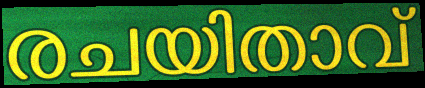
രചയിതാവ്